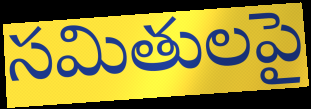
సమితులపై